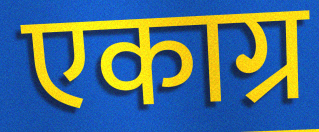
एकाग्र